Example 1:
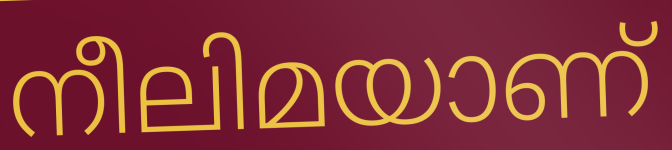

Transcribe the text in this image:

നീലിമയാണ്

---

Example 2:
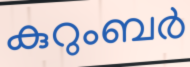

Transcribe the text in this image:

കുറുംബർ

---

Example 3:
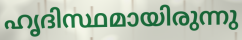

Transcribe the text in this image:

ഹൃദിസ്ഥമായിരുന്നു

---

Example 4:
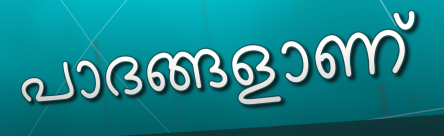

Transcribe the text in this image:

പാദങ്ങളാണ്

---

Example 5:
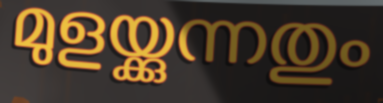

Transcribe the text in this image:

മുളയ്ക്കുന്നതും